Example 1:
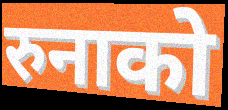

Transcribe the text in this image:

रुनाको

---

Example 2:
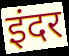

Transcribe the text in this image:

इंदर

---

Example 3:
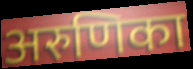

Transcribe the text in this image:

अरुणिका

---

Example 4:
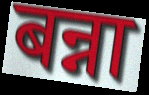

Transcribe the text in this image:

बन्ना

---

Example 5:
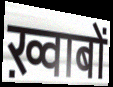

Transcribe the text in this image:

ख़्वाबों